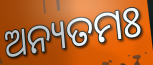
ଅନ୍ୟତମଃ